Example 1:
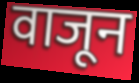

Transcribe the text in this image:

वाजून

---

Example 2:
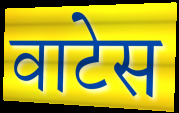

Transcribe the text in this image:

वाटेस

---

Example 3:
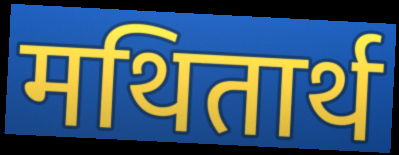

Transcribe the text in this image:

मथितार्थ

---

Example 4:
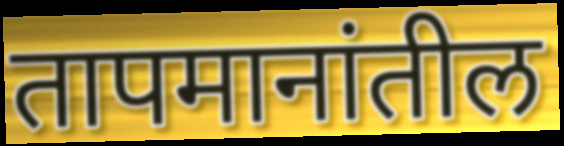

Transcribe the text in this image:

तापमानांतील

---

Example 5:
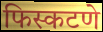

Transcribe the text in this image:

फिस्कटणे